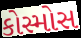
કોસ્મોસ